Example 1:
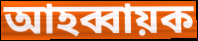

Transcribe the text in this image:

আহব্বায়ক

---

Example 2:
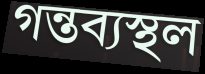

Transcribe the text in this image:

গন্তব্যস্থল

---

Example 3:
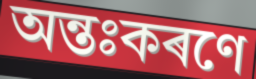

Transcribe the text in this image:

অন্তঃকৰণে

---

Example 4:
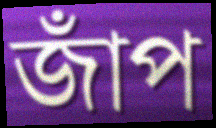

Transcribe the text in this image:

জাঁপ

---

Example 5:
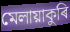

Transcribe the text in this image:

মেলায়াকুৰি